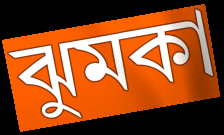
ঝুমকা